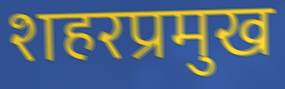
शहरप्रमुख